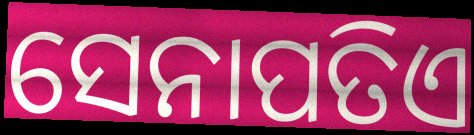
ସେନାପତିଏ